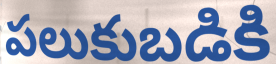
పలుకుబడికి